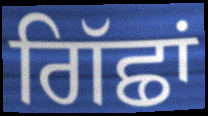
ਗਿੱਛਾਂ